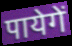
पायेगें